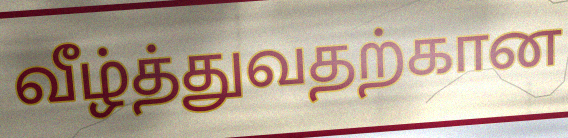
வீழ்த்துவதற்கான